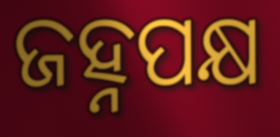
ଜହ୍ନପକ୍ଷ